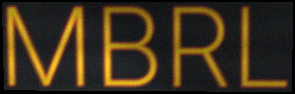
MBRL